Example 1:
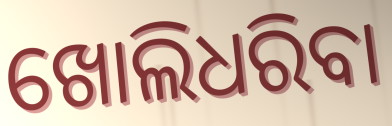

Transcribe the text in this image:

ଖୋଲିଧରିବା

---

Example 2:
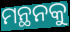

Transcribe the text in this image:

ମନ୍ଥନକୁ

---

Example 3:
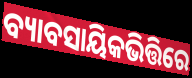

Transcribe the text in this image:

ବ୍ୟାବସାୟିକଭିତ୍ତିରେ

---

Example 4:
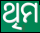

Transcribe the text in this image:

ଥିମ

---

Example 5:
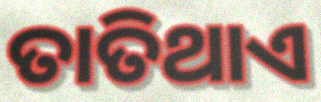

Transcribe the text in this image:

ତାତିଥାଏ